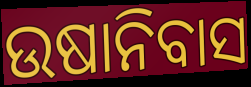
ଉଷାନିବାସ